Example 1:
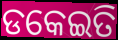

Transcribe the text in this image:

ଡକେଇତି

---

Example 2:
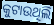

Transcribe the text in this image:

କୁଟାଉଥିଲି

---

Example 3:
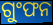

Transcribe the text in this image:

ଗୁଂଫନ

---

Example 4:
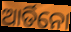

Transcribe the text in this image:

ଆର୍ଡିନୋ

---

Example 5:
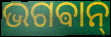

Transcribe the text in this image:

ଭଗଵାନ୍